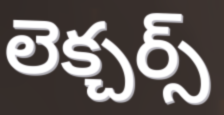
లెక్చర్స్